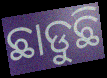
ଛାଡୁଛି